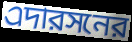
এদারসনের